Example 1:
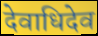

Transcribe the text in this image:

देवाधिदेव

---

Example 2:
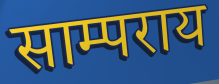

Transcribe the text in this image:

साम्पराय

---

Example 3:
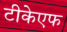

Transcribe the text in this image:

टीकेएफ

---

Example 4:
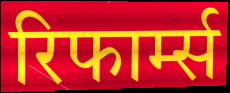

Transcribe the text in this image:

रिफार्म्स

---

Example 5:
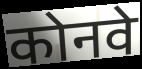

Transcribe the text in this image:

कोनवे